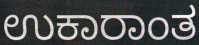
ಉಕಾರಾಂತ